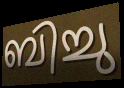
ബിച്ചു